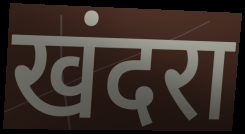
खंदरा